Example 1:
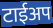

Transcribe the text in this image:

टाईअप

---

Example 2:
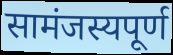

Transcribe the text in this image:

सामंजस्यपूर्ण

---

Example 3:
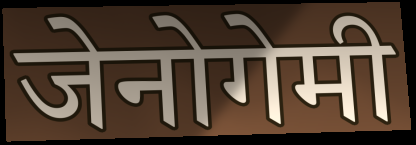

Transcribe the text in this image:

जेनोगेमी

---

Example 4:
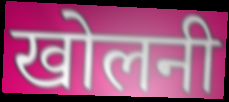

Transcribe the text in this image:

खोलनी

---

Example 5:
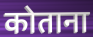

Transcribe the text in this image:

कोताना